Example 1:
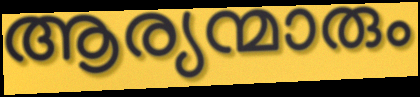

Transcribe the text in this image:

ആര്യന്മാരും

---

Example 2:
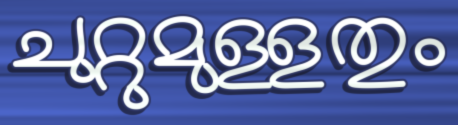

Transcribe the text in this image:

ചുറ്റുമുള്ളതും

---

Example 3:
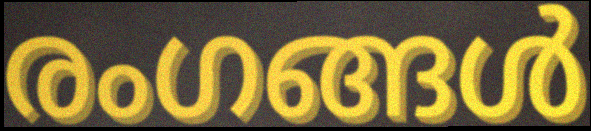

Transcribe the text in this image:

രംഗങ്ങൾ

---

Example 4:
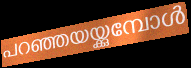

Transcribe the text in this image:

പറഞ്ഞയയ്ക്കുമ്പോൾ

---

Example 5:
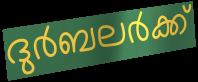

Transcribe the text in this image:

ദുർബലർക്ക്